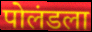
पोलंडला